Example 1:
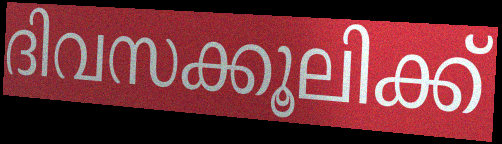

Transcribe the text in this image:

ദിവസക്കൂലിക്ക്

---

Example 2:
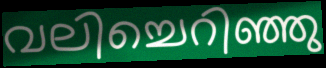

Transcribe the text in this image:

വലിച്ചെറിഞ്ഞു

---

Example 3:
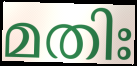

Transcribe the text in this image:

മതിഃ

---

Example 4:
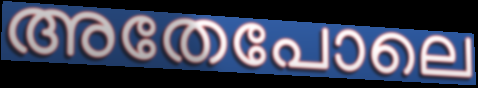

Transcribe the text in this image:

അതേപോലെ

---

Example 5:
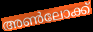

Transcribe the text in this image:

അൺലോക്ക്